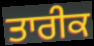
ਤਾਰੀਕ